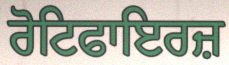
ਰੋਟਿਫਾਇਰਜ਼